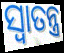
ସ୍ୱାତନ୍ତ୍ର